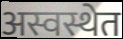
अस्वस्थेत